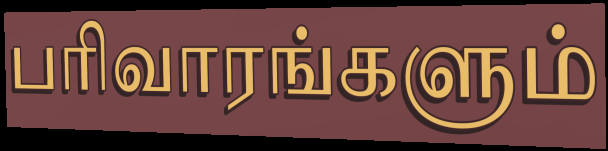
பரிவாரங்களும்